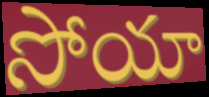
సోయా